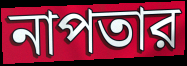
নাপতার